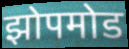
झोपमोड